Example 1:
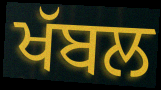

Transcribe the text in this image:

ਖੱਬਲ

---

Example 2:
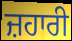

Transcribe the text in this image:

ਜ਼ਹਾਰੀ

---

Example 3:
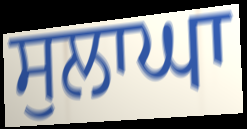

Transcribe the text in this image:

ਸੁਲਾਘਾ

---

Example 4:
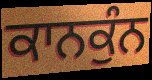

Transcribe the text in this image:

ਕਾਨਕੁੰਨ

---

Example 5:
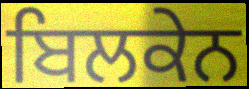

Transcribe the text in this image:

ਬਿਲਕੇਨ